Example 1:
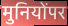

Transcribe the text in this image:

मुनियोंपर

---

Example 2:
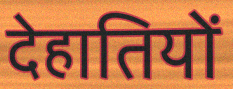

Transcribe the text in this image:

देहातियों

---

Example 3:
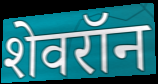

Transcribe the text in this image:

शेवरॉन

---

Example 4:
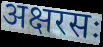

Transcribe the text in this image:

अक्षरसः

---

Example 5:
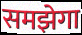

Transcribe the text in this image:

समझेगा